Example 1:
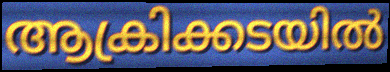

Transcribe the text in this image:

ആക്രിക്കടയിൽ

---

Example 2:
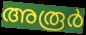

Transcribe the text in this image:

അരൂർ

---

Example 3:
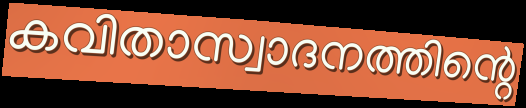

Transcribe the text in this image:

കവിതാസ്വാദനത്തിന്റെ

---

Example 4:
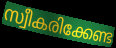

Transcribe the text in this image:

സ്വീകരിക്കേണ്ട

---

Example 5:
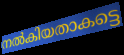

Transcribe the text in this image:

നൽകിയതാകട്ടെ